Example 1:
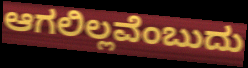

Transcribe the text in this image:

ಆಗಲಿಲ್ಲವೆಂಬುದು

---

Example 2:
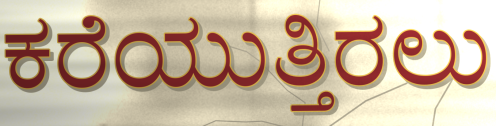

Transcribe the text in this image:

ಕರೆಯುತ್ತಿರಲು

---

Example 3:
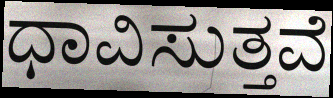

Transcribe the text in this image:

ಧಾವಿಸುತ್ತವೆ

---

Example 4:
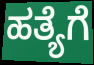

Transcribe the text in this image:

ಹತ್ಯೆಗೆ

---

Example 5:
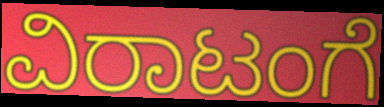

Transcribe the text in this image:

ವಿರಾಟಂಗೆ